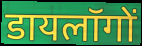
डायलॉगों